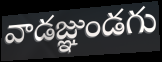
వాడజ్ఞుండగు